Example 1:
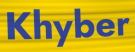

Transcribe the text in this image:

Khyber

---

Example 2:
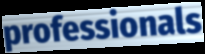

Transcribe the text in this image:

professionals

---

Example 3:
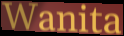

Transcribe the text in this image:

Wanita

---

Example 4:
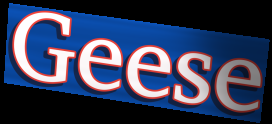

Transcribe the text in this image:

Geese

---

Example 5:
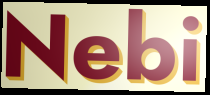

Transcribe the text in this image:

Nebi